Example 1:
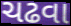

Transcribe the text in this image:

ચઢવા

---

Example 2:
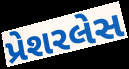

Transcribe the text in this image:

પ્રેશરલેસ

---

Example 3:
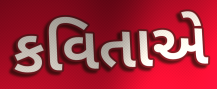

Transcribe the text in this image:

કવિતાએ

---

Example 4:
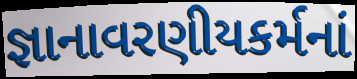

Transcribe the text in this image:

જ્ઞાનાવરણીયકર્મનાં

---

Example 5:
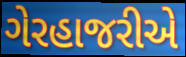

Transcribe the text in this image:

ગેરહાજરીએ